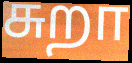
சுறா